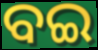
ବଇ